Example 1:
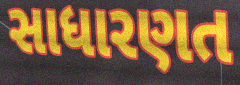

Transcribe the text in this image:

સાધારણત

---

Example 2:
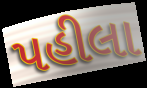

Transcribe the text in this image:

પહીલા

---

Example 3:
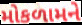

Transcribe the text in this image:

મોકળામને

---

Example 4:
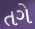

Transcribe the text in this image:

તગે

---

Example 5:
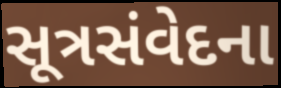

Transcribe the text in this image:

સૂત્રસંવેદના